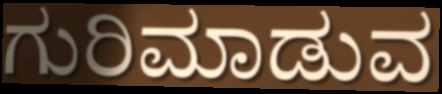
ಗುರಿಮಾಡುವ